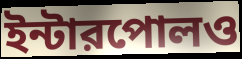
ইন্টারপোলও